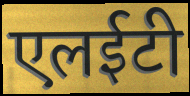
एलईटी